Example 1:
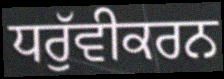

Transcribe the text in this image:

ਧਰੁੱਵੀਕਰਨ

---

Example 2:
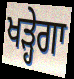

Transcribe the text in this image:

ਖੜ੍ਹੇਗਾ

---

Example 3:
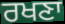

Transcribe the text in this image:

ਰਖਣਾ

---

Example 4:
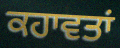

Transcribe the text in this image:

ਕਹਾਵਤਾਂ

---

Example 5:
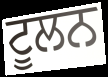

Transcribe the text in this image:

ਟੂਲਨ